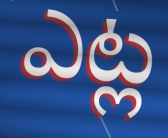
ఎట్ల